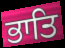
ਭਾਤਿ